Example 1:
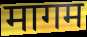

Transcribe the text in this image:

मागम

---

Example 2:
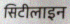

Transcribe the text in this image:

सिटीलाइन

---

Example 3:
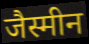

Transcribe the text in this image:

जैस्‍मीन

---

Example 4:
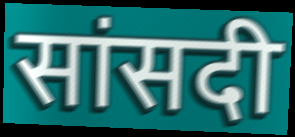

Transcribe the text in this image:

सांसदी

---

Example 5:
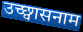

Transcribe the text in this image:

उच्छ्वासनाम